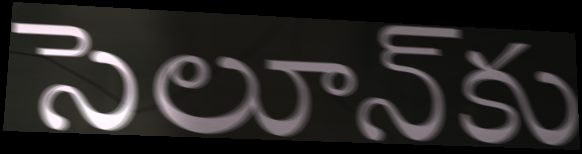
సెలూన్‌కు